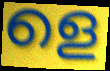
ളെ